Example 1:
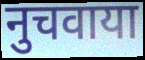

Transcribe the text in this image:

नुचवाया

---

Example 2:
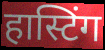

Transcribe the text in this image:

हास्टिंग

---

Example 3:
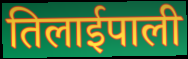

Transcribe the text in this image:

तिलाईपाली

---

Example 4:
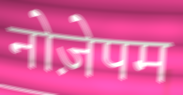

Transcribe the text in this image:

नोज़ेपम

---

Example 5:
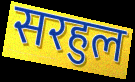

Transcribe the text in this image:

सरहुल